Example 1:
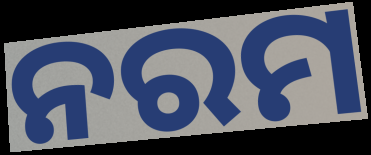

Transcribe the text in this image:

ନରମ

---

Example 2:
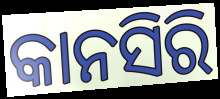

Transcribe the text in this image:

କାନସିରି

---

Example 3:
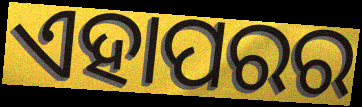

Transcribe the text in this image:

ଏହାପରର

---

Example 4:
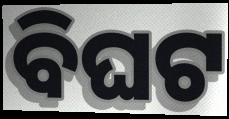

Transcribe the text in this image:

ବିଘଟ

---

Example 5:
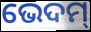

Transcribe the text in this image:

ଭେଦମ୍